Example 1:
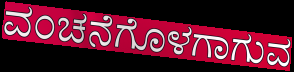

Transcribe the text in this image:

ವಂಚನೆಗೊಳಗಾಗುವ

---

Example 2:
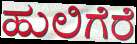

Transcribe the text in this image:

ಹುಲಿಗೆರೆ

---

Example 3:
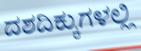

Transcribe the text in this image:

ದಶದಿಕ್ಕುಗಳಲ್ಲಿ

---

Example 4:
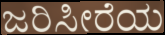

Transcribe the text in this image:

ಜರಿಸೀರೆಯ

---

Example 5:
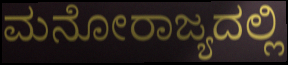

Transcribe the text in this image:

ಮನೋರಾಜ್ಯದಲ್ಲಿ